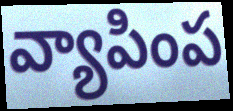
వ్యాపింప